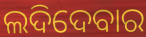
ଲଦିଦେବାର